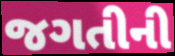
જગતીની